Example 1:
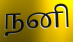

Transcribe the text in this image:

நனி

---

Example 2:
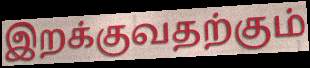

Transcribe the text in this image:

இறக்குவதற்கும்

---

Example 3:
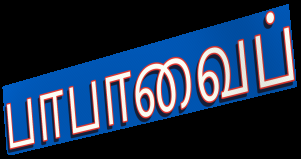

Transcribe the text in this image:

பாபாவைப்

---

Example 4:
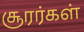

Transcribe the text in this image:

சூரர்கள்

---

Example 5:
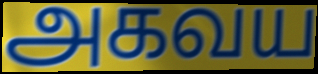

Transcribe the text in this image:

அகவய